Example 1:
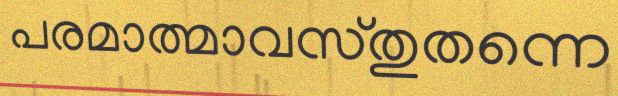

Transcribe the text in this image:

പരമാത്മാവസ്തുതന്നെ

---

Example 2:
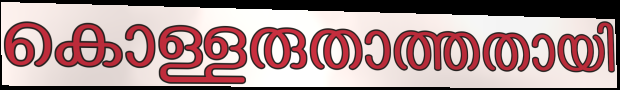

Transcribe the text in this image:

കൊള്ളരുതാത്തതായി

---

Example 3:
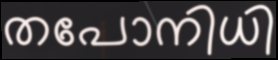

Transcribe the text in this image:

തപോനിധി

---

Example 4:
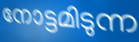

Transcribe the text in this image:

നോട്ടമിടുന്ന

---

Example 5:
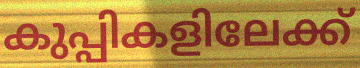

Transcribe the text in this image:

കുപ്പികളിലേക്ക്